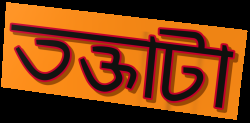
তক্তাটা